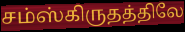
சம்ஸ்கிருதத்திலே